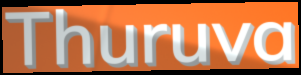
Thuruva